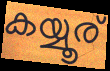
കയ്യൂര്